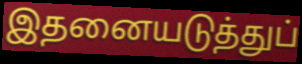
இதனையடுத்துப்